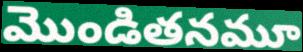
మొండితనమూ